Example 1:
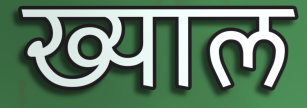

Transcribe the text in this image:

ख्याल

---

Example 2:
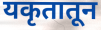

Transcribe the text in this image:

यकृतातून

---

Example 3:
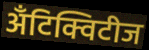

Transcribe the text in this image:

अँटिक्विटीज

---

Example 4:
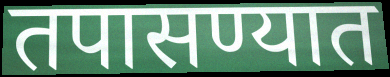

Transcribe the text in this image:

तपासण्यात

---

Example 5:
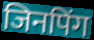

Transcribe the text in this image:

जिनपिंग